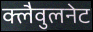
क्लैवुलनेट